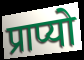
प्राप्यो